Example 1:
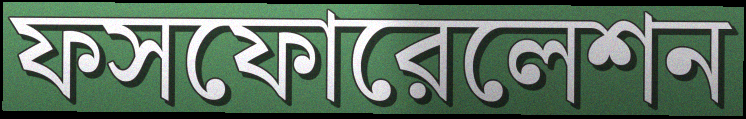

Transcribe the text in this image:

ফসফোরেলেশন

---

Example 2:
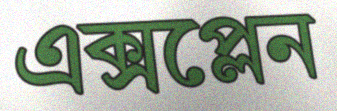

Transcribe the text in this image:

এক্সপ্লেন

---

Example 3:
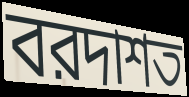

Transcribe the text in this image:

বরদাশত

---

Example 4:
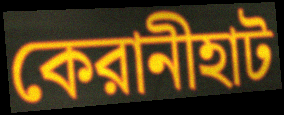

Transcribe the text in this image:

কেরানীহাট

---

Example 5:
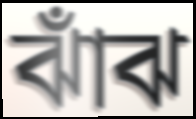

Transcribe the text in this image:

ঝাঁঝ